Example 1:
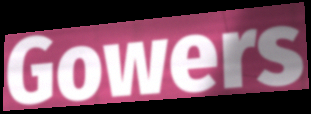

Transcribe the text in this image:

Gowers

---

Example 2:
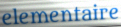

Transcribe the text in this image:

elementaire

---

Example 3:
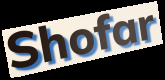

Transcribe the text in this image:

Shofar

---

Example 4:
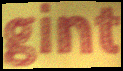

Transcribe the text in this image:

gint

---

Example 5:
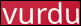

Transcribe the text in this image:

vurdu